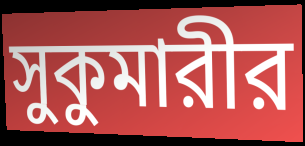
সুকুমারীর